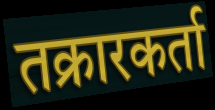
तक्रारकर्ता